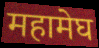
महामेघ